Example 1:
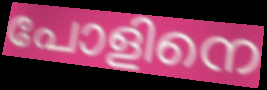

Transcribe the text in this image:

പോളിനെ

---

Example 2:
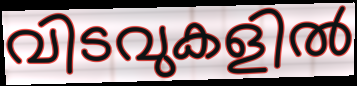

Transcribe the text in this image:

വിടവുകളിൽ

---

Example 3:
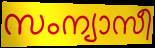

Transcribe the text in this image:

സംന്യാസീ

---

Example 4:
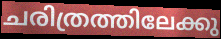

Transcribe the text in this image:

ചരിത്രത്തിലേക്കു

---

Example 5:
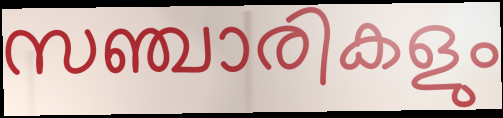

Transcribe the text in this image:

സഞ്ചാരികളും